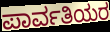
ಪಾರ್ವತಿಯರ